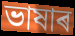
ভাষাৰ